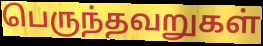
பெருந்தவறுகள்